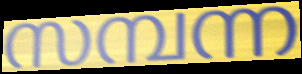
സമ്പന്ന